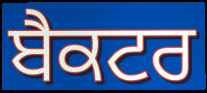
ਬੈਕਟਰ